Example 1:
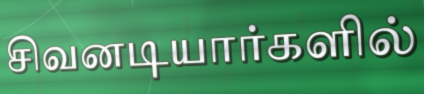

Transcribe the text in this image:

சிவனடியார்களில்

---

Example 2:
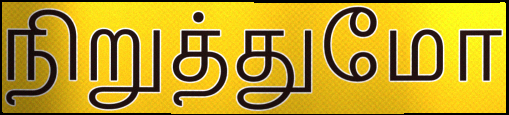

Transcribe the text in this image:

நிறுத்துமோ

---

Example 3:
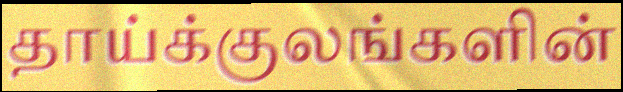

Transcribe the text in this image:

தாய்க்குலங்களின்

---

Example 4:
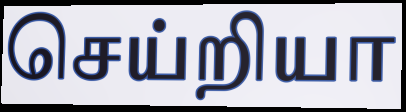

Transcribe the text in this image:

செய்றியா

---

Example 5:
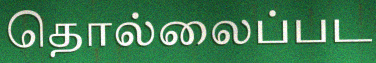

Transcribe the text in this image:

தொல்லைப்பட